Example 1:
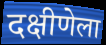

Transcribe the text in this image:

दक्षीणेला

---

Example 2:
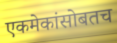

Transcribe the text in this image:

एकमेकांसोबतच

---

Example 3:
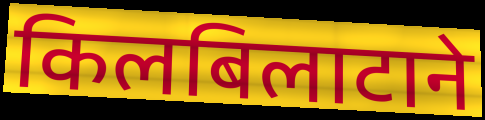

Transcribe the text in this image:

किलबिलाटाने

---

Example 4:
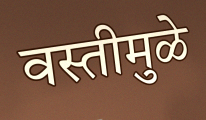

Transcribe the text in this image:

वस्तीमुळे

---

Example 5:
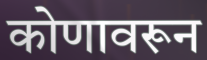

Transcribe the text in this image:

कोणावरून